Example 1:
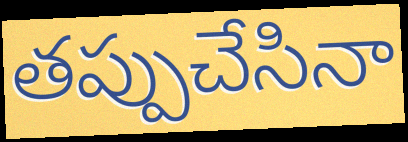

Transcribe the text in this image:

తప్పుచేసినా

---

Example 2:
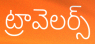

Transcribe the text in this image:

ట్రావెలర్స్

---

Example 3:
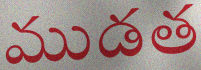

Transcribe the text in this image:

ముడత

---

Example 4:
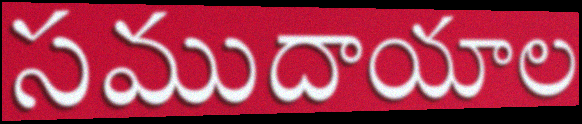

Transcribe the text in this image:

సముదాయాల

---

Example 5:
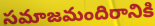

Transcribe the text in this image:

సమాజమందిరానికి